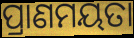
ପ୍ରାଣମୟତା